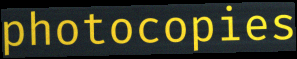
photocopies